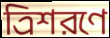
ত্রিশরণে